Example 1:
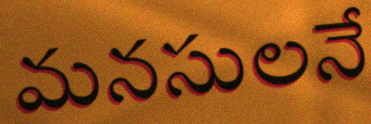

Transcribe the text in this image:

మనసులనే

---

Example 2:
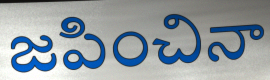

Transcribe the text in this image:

జపించినా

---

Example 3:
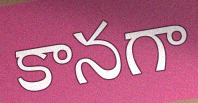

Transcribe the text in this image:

కానగా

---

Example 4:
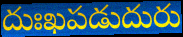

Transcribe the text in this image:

దుఃఖపడుదురు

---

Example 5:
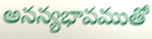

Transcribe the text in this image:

అనన్యభావముతో